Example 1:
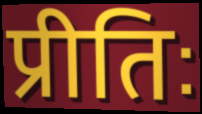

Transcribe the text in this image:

प्रीतिः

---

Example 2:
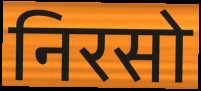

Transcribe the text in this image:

निरसो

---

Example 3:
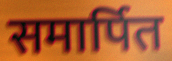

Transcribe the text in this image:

समार्पित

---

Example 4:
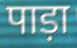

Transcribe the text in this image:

पाड़ा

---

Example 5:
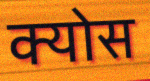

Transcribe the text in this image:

क्योस